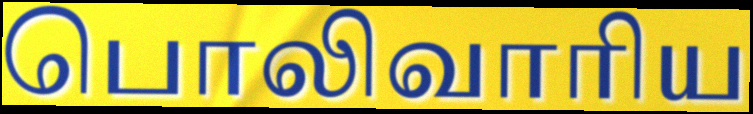
பொலிவாரிய